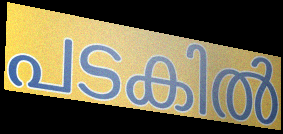
പടകിൽ